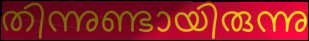
തിന്നുണ്ടായിരുന്നു